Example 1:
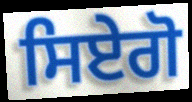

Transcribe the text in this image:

ਸਿਏਗੋ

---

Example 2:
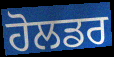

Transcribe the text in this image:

ਹੋਲਡਰ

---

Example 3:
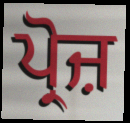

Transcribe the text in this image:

ਪ੍ਰੋਜ਼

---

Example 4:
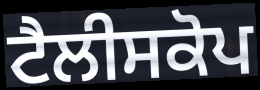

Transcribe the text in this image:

ਟੈਲੀਸਕੋਪ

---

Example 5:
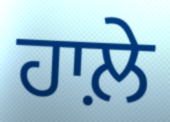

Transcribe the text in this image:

ਹਾਲ਼ੇ